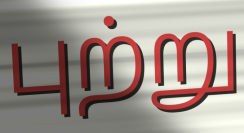
புற்று